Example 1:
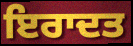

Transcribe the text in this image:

ਇਰਾਦਤ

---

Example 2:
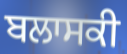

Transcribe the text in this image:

ਬਲਾਸਕੀ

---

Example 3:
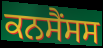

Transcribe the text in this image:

ਕਨਸੈਂਸਸ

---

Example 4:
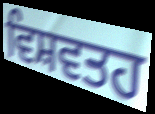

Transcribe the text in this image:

ਵਿਸ਼ਵਤਹ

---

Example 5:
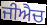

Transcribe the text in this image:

ਜੀਐਚ